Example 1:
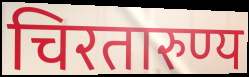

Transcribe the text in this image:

चिरतारुण्य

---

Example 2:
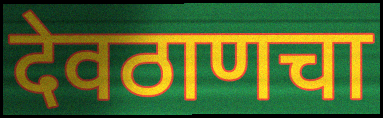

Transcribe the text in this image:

देवठाणचा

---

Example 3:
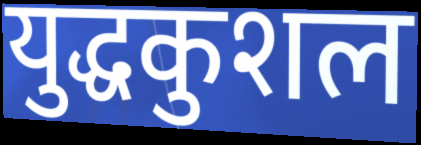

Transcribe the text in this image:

युद्धकुशल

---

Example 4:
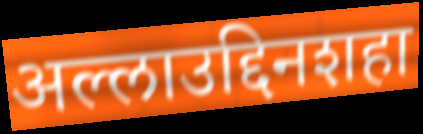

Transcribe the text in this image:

अल्लाउद्दिनशहा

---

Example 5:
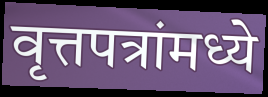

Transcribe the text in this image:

वृत्तपत्रांमध्ये